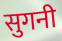
सुगनी